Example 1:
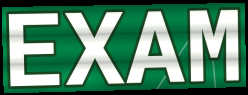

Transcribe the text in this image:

EXAM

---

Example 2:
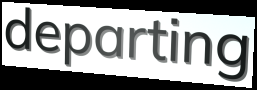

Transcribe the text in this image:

departing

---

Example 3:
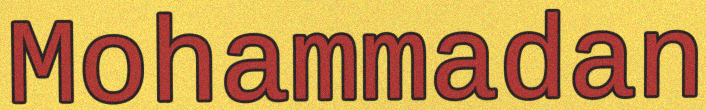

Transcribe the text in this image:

Mohammadan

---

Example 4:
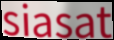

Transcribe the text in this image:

siasat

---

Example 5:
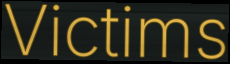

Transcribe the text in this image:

Victims